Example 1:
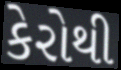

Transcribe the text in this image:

કેરોથી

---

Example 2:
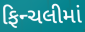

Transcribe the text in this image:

ફિન્ચલીમાં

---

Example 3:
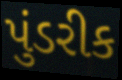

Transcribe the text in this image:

પુંડરીક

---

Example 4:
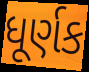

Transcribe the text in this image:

ધૂર્ણક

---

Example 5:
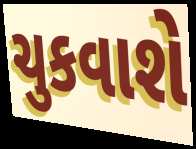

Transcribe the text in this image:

ચુકવાશે